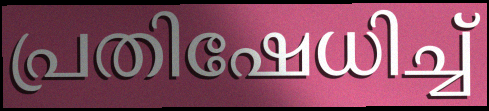
പ്രതിഷേധിച്ച്